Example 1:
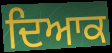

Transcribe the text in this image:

ਦਿਆਕ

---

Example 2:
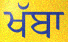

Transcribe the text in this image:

ਖੱਬਾ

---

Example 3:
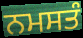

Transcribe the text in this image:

ਨਮਸਤੰ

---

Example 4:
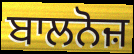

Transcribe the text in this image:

ਬਾਲਨੋਜ਼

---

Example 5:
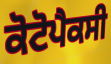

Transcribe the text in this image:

ਕੋਟੋਪੈਕਸੀ